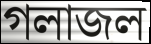
গলাজল